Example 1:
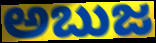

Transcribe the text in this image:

ಅಬುಜ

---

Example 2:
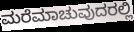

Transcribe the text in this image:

ಮರೆಮಾಚುವುದರಲ್ಲಿ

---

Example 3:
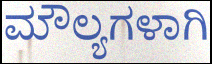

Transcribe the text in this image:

ಮೌಲ್ಯಗಳಾಗಿ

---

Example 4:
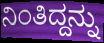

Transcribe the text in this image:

ನಿಂತಿದ್ದನ್ನು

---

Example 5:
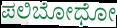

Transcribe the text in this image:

ಪಲಿಬೋಧೋ